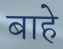
बाहे